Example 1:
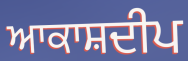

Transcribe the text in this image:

ਆਕਾਸ਼ਦੀਪ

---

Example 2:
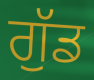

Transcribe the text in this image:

ਗੁੱਡ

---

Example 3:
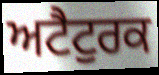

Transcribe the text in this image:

ਅਟੈਟੁਰਕ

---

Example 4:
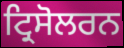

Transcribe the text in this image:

ਟ੍ਰਿਸੋਲਰਨ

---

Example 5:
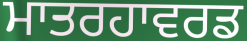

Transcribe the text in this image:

ਮਾਤਰਹਾਵਰਡ